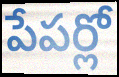
పేపర్లో